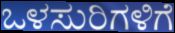
ಒಳಸುರಿಗಳಿಗೆ